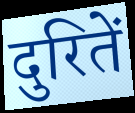
दुरितें